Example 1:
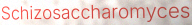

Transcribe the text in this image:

Schizosaccharomyces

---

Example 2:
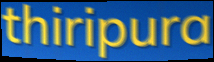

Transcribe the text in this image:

thiripura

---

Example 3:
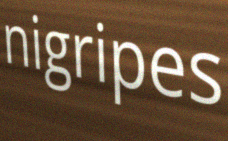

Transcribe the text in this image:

nigripes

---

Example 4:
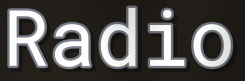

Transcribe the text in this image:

Radio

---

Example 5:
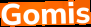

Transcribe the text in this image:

Gomis